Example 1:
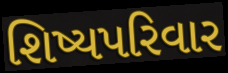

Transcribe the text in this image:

શિષ્યપરિવાર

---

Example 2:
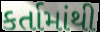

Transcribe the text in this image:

કર્તામાંથી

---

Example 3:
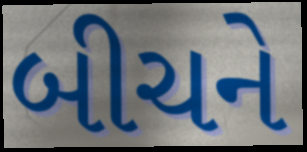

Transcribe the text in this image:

બીચને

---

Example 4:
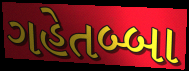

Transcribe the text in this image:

ગહેતબ્બા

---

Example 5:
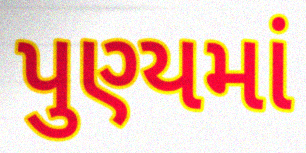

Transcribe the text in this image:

પુણ્યમાં